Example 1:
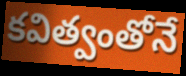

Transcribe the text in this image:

కవిత్వంతోనే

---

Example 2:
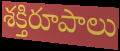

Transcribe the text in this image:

శక్తిరూపాలు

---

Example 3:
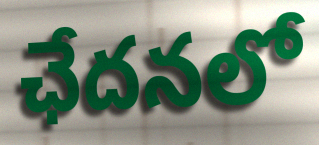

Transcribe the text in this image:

ఛేదనలో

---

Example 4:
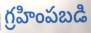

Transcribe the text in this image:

గ్రహింపబడి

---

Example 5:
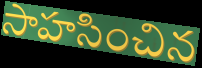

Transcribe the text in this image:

సాహసించిన